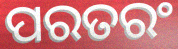
ପରତରଂ